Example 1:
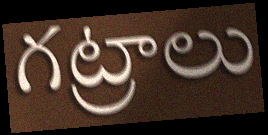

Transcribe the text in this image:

గట్రాలు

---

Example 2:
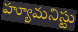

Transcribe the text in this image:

హ్యూమనిస్టు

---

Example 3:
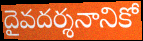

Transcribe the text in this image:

దైవదర్శనానికో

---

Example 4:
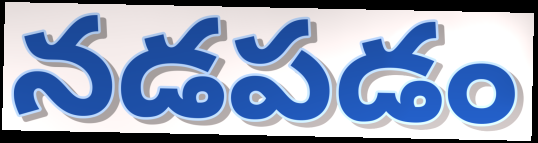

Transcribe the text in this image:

నడపడం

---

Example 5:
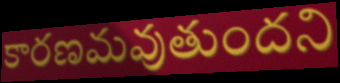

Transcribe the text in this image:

కారణమవుతుందని